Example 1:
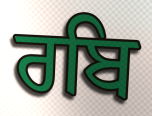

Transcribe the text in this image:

ਰਬਿ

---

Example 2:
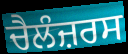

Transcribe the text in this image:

ਚੈਲੰਜ਼ਰਸ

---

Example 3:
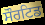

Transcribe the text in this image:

ਸੌਰਟਿਡ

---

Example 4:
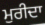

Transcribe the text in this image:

ਮੁਰੀਦਾ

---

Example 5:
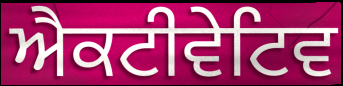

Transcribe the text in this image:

ਐਕਟੀਵੇਟਿਵ